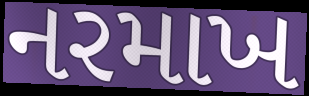
નરમાખ